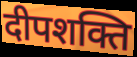
दीपशक्ति